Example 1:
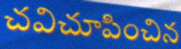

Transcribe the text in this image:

చవిచూపించిన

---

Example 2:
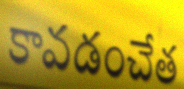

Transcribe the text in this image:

కావడంచేత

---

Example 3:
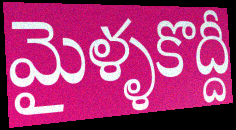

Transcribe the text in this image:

మైళ్ళకొద్దీ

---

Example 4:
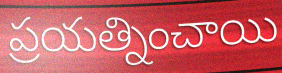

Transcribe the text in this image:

ప్రయత్నించాయి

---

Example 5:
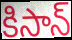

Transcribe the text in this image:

కిసాన్